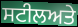
ਸਟੀਲਅਤੇ